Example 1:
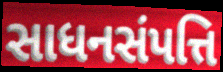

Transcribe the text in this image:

સાધનસંપત્તિ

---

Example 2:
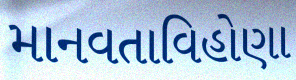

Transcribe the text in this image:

માનવતાવિહોણા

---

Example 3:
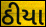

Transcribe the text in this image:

ઠીયા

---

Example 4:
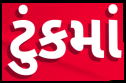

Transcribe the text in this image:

ટુંકમાં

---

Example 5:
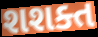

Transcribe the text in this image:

શશક્ત